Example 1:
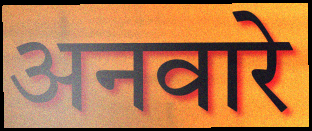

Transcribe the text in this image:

अनवारे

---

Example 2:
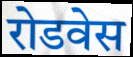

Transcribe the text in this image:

रोडवेस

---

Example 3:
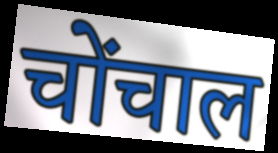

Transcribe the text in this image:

चोंचाल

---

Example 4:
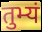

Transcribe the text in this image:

तुभ्यं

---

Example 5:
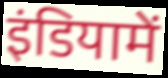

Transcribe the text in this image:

इंडियामें